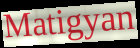
Matigyan